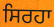
ਸਿਰਹਾ